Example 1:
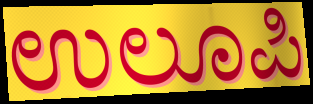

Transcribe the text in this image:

ಉಲೂಪಿ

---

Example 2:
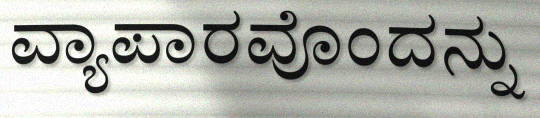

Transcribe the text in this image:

ವ್ಯಾಪಾರವೊಂದನ್ನು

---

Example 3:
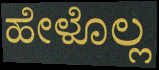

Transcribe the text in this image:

ಹೇಳೊಲ್ಲ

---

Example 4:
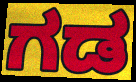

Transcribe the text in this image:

ಗಡ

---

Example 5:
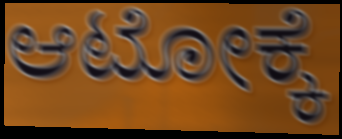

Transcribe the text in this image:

ಆಟೋಕ್ಕೆ